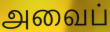
அவைப்